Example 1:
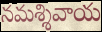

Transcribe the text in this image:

నమశ్శివాయ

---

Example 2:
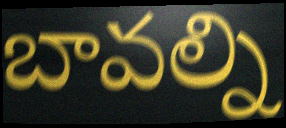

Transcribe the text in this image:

బావల్ని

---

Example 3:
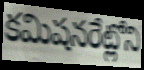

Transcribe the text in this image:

కమిషనరేట్లోని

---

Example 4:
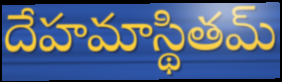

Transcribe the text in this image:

దేహమాస్థితమ్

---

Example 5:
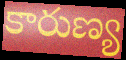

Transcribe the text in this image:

కారుణ్య